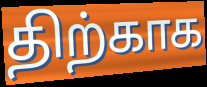
திற்காக